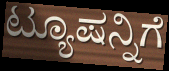
ಟ್ಯೂಷನ್ನಿಗೆ